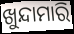
ଖୁନ୍ଦାମାରି